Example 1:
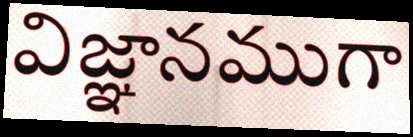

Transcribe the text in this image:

విజ్ఞానముగా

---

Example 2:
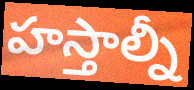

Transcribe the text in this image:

హస్తాల్నీ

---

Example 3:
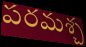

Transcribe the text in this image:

పరమశ్చ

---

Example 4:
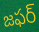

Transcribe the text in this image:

జఫర్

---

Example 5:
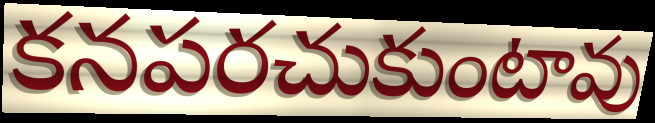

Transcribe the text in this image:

కనపరచుకుంటావు